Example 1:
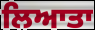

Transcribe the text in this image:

ਲਿਆਤਾ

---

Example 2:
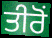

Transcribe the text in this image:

ਤੀਰੋਂ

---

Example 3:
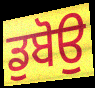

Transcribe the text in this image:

ਡੁਬੋਉ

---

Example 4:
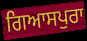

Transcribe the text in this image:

ਗਿਆਸਪੁਰਾ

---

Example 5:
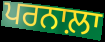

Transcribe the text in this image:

ਪਰਨਾਲ਼ਾ